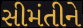
સીમંતીને